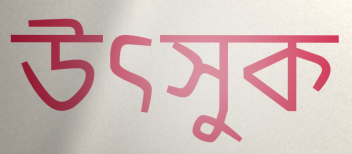
উৎসুক